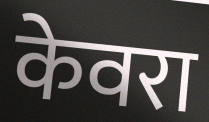
केवरा